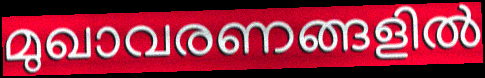
മുഖാവരണങ്ങളിൽ